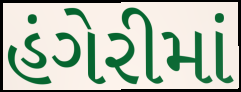
હંગેરીમાં